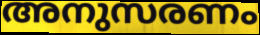
അനുസരണം